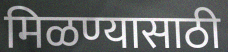
मिळण्‍यासाठी